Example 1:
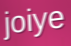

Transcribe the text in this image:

joiye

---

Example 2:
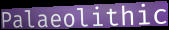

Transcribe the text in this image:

Palaeolithic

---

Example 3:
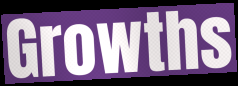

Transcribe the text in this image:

Growths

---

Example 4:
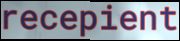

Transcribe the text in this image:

recepient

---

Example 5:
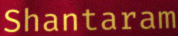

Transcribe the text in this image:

Shantaram